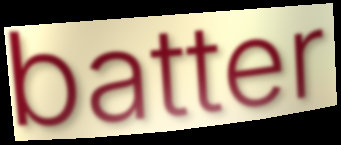
batter